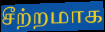
சீற்றமாக